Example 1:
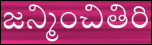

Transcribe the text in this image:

జన్మించితిరి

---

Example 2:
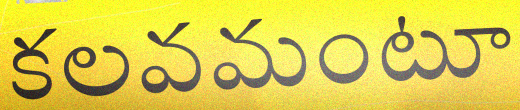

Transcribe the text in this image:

కలవమంటూ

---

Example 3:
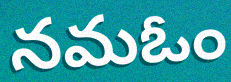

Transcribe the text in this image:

నమఓం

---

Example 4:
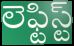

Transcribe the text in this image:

లెఫ్టిస్ట్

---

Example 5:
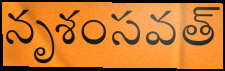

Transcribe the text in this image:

నృశంసవత్